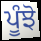
ਪੂੰਝੋ